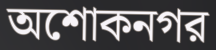
অশোকনগর